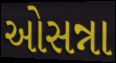
ઓસન્ના